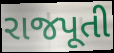
રાજપૂતી